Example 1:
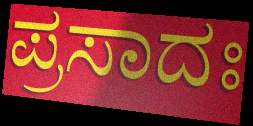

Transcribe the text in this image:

ಪ್ರಸಾದಃ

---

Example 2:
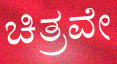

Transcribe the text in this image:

ಚಿತ್ರವೇ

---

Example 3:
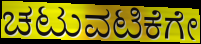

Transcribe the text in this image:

ಚಟುವಟಿಕೆಗೇ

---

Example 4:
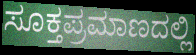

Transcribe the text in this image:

ಸೂಕ್ತಪ್ರಮಾಣದಲ್ಲಿ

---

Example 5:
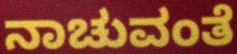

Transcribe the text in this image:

ನಾಚುವಂತೆ